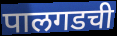
पालगडची